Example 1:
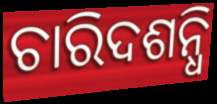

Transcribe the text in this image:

ଚାରିଦଶନ୍ଧି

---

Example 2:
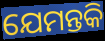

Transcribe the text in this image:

ଯେମନ୍ତକି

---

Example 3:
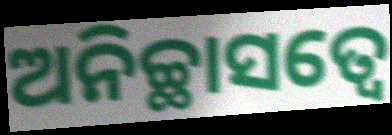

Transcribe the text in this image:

ଅନିଚ୍ଛାସତ୍ୱେ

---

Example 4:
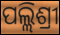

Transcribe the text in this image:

ପଲ୍ଲିଶ୍ରୀ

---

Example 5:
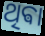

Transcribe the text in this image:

ଥିଵା